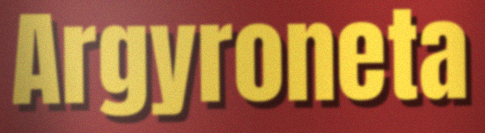
Argyroneta